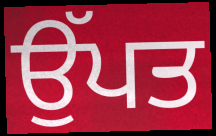
ਉੱਪਤ